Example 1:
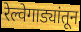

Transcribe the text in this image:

रेल्वेगाड्यांतून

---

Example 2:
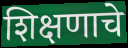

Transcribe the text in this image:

शिक्षणाचे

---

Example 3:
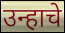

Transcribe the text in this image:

उन्हाचे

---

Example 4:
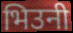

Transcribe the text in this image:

भिउनी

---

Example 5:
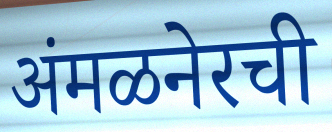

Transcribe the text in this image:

अंमळनेरची